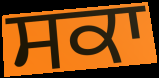
ਸਕਾ